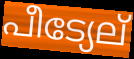
പീട്യേല്